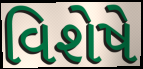
વિશેષે